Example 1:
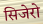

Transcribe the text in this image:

सिजेरो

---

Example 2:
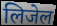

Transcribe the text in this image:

लिजेल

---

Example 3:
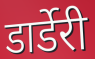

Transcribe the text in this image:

डार्डेरी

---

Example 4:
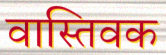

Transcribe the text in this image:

वास्तिवक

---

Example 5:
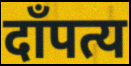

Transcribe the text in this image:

दाँपत्य